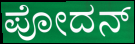
ಪೋದನ್